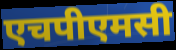
एचपीएमसी